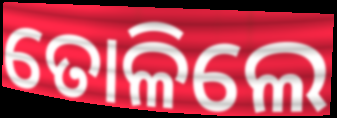
ତୋଳିଲେ